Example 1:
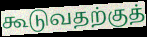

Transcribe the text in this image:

கூடுவதற்குத்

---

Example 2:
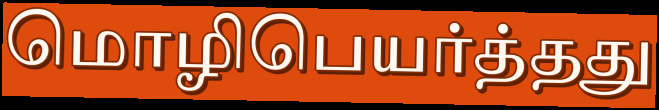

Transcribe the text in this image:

மொழிபெயர்த்தது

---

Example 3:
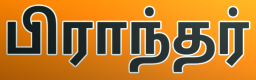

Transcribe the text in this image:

பிராந்தர்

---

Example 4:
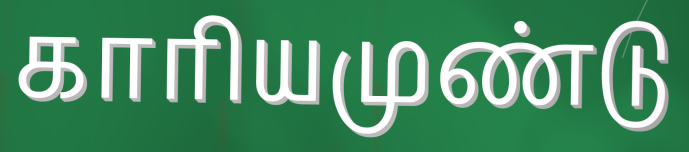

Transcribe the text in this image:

காரியமுண்டு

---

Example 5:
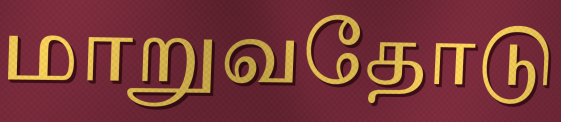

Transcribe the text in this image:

மாறுவதோடு